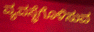
ವ್ಯವಸ್ಥೆಗೊಳಿಸುವ